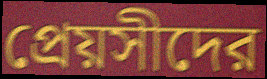
প্রেয়সীদের